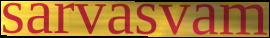
sarvasvam